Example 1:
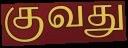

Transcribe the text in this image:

குவது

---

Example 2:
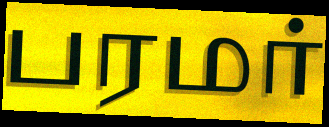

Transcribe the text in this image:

பரமர்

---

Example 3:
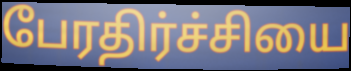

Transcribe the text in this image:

பேரதிர்ச்சியை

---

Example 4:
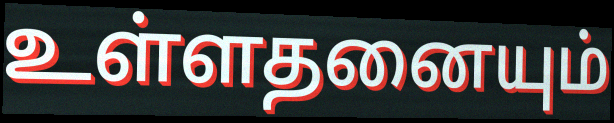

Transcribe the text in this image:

உள்ளதனையும்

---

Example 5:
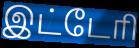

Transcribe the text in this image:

இட்டேரி